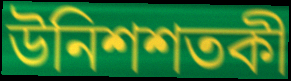
উনিশশতকী